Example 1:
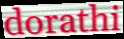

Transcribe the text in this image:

dorathi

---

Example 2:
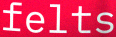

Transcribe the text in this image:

felts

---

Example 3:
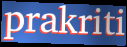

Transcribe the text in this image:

prakriti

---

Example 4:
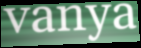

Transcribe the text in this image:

vanya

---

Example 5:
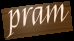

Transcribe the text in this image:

pram